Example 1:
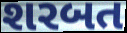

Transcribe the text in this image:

શરબત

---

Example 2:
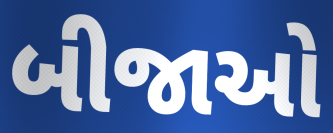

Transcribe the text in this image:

બીજાઓ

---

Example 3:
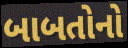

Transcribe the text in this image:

બાબતોનો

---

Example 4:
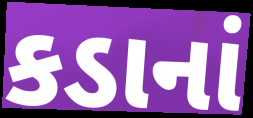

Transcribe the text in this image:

કડાનાં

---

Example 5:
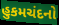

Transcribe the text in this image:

હુકમચંદનો